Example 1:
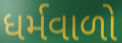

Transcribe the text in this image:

ધર્મવાળો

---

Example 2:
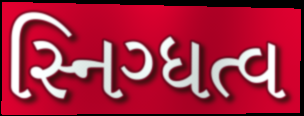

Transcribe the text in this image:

સ્નિગ્ધત્વ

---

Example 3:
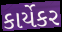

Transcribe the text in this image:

કાર્યેકર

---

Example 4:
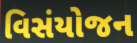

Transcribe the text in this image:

વિસંયોજન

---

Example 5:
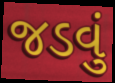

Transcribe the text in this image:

જડવું